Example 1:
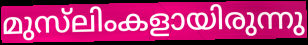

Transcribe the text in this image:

മുസ്‌ലിംകളായിരുന്നു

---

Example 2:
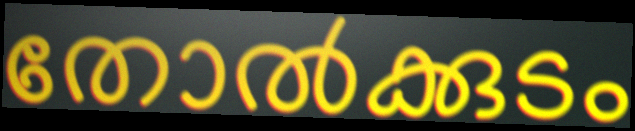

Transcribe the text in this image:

തോൽക്കുടം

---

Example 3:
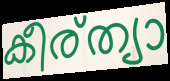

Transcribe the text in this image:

കീര്ത്യാ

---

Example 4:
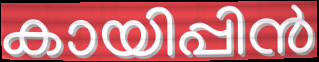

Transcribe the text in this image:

കായിപ്പിൻ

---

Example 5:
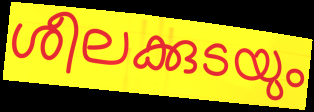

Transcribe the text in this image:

ശീലക്കുടയും